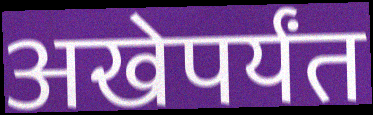
अखेपर्यंत